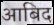
आबिद